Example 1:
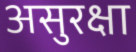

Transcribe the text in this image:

असुरक्षा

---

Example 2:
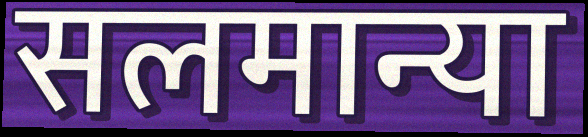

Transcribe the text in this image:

सलमान्या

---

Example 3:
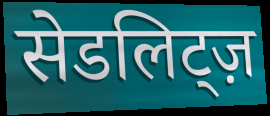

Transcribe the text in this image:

सेडलिट्ज़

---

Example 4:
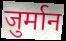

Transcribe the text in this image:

जुर्मान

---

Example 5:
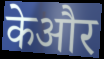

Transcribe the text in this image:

केऔर